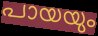
പായയും